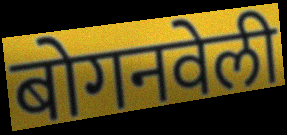
बोगनवेली